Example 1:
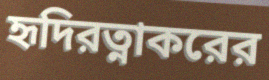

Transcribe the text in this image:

হৃদিরত্নাকরের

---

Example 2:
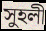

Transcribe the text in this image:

সুহলী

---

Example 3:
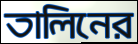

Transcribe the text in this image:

তালিনের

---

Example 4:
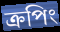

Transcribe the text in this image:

ক্রপিং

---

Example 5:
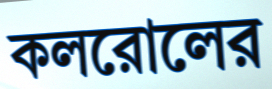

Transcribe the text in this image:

কলরোলের